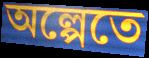
অল্পেতে